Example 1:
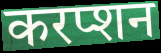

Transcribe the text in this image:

करप्शन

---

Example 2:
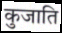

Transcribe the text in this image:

कुजाति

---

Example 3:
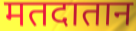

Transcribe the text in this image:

मतदातान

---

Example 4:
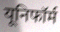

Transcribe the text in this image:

यूनिफॉर्म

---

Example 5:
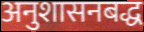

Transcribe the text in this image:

अनुशासनबद्ध